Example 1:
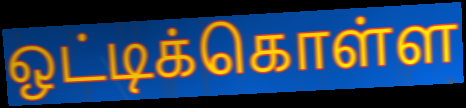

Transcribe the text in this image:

ஒட்டிக்கொள்ள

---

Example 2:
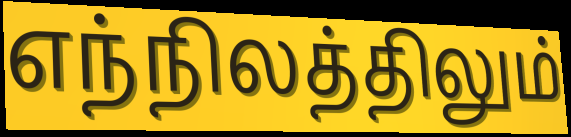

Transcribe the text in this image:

எந்நிலத்திலும்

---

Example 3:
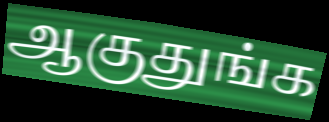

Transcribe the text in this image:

ஆகுதுங்க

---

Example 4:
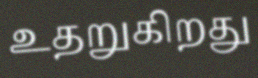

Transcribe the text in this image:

உதறுகிறது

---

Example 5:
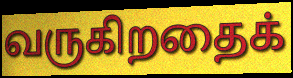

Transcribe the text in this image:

வருகிறதைக்